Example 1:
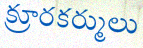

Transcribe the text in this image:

క్రూరకర్ములు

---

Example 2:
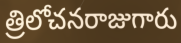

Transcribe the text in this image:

త్రిలోచనరాజుగారు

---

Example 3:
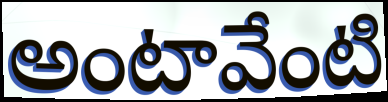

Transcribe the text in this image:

అంటావేంటి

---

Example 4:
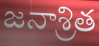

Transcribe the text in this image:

జనాశ్రిత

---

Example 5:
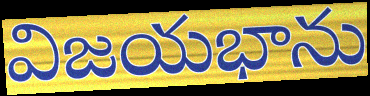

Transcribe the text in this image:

విజయభాను